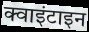
क्वाइंटाइन